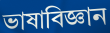
ভাষাবিজ্ঞান